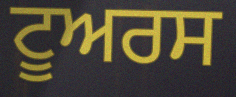
ਟੂਅਰਸ